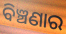
ବିଞ୍ଚଣାର